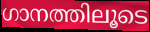
ഗാനത്തിലൂടെ